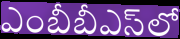
ఎంబీబీఎస్‌లో